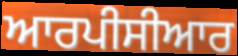
ਆਰਪੀਸੀਆਰ